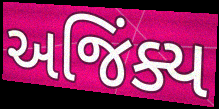
અજિંક્ય